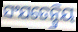
ସଂଯତେନ୍ଦ୍ରିୟ